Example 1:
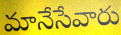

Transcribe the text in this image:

మానేసేవారు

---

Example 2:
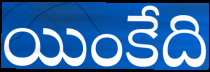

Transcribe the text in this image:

యింకేది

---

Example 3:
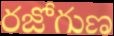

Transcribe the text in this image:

రజోగుణ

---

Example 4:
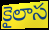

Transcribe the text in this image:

కైలాస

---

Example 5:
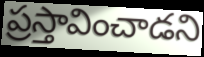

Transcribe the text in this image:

ప్రస్తావించాడని